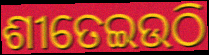
ଶୀତେଇଉଠି